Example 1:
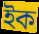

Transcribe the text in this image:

ইক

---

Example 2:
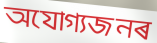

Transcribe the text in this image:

অযোগ্যজনৰ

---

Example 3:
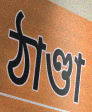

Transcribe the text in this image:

ঠাণ্ডা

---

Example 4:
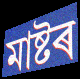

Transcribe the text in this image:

মাষ্টৰ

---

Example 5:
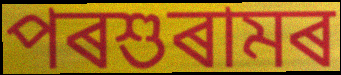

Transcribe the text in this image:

পৰশুৰামৰ